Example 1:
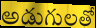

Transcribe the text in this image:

అడుగులతో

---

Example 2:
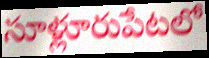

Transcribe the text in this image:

సూళ్లూరుపేటలో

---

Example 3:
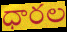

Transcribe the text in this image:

ధారల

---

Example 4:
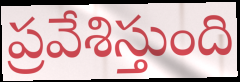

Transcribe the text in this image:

ప్రవేశిస్తుంది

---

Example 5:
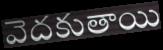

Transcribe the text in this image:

వెదకుతాయి